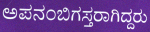
ಅಪನಂಬಿಗಸ್ತರಾಗಿದ್ದರು